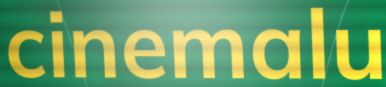
cinemalu